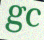
gc